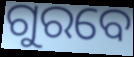
ଗୁରବେ